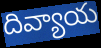
దివ్యాయ